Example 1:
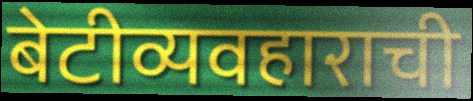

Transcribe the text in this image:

बेटीव्यवहाराची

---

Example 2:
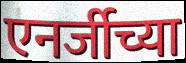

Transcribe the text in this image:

एनर्जीच्या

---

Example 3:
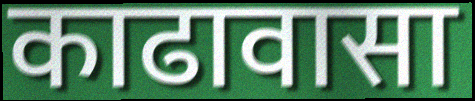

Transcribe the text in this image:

काढावासा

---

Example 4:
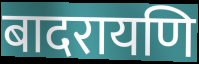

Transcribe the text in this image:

बादरायणि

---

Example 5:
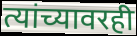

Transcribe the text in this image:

त्यांच्यावरही